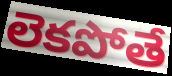
లెకపోతే